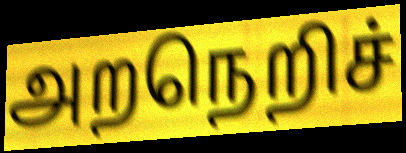
அறநெறிச்